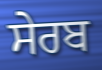
ਸੇਰਬ